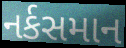
નર્કસમાન